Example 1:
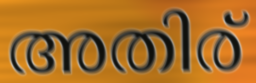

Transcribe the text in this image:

അതിര്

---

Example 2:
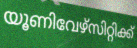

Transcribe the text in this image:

യൂണിവേഴ്സിറ്റിക്ക്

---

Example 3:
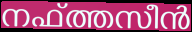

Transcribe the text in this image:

നഫ്ത്തസീൻ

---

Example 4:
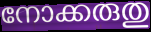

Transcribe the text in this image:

നോക്കരുതു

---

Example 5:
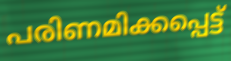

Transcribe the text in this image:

പരിണമിക്കപ്പെട്ട്